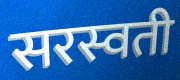
सरस्‍वती